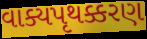
વાક્યપૃથક્કરણ